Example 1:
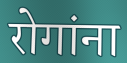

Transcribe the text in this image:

रोगांना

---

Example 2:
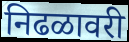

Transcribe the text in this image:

निढळावरी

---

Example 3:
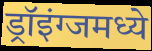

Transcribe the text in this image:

ड्रॉइंग्जमध्ये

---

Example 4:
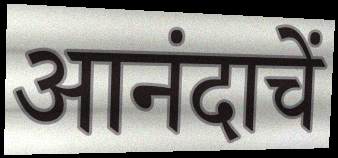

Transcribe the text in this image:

आनंदाचें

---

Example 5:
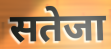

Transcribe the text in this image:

सतेजा